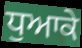
ਧੁਆਕੇ